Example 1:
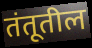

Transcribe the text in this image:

तंतूतील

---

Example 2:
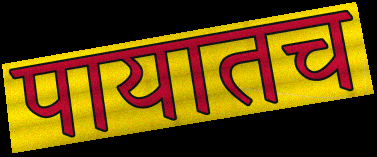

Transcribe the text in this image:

पायातच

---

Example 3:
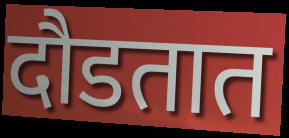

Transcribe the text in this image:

दौडतात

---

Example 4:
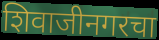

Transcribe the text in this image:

शिवाजीनगरचा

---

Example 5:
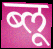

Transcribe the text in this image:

ब्लू